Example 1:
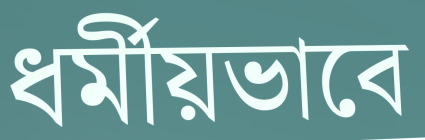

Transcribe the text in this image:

ধর্মীয়ভাবে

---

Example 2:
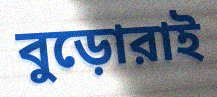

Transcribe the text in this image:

বুড়োরাই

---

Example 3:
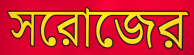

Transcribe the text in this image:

সরোজের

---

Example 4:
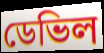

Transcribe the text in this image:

ডেভিল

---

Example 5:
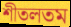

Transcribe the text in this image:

শীতলতম